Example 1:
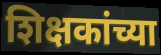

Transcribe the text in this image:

शिक्षकांच्या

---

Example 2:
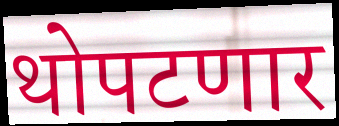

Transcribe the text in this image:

थोपटणार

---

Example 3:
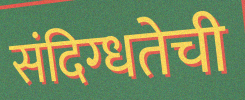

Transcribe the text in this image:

संदिग्धतेची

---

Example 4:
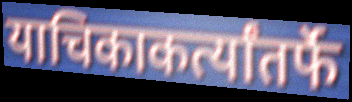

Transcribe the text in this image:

याचिकाकर्त्यांतर्फे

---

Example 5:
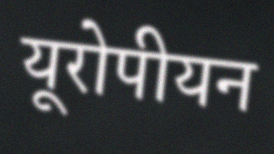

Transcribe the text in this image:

यूरोपीयन